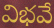
విభవే